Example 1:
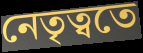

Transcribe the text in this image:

নেতৃত্বতে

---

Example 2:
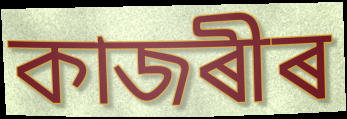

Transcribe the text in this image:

কাজৰীৰ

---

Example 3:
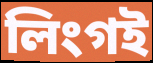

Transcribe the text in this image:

লিংগই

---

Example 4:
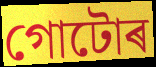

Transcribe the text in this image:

গোটোৰ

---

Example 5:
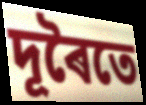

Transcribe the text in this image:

দূৰৈতে